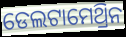
ଡେଲଟାମେଥ୍ରିନ